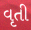
વૃતી